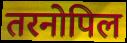
तरनोपिल